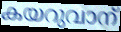
കയറുവാന്